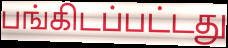
பங்கிடப்பட்டது